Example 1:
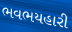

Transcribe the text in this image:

ભવભયહારી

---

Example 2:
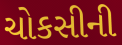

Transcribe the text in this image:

ચોકસીની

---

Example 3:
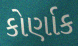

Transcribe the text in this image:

કોર્ણાક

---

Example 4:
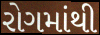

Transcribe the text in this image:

રોગમાંથી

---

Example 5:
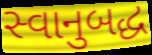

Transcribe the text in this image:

સ્વાનુબદ્ધ